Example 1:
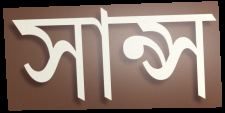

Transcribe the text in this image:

সান্স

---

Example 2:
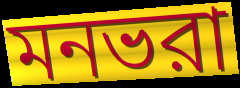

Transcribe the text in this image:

মনভরা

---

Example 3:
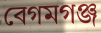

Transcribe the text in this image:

বেগমগঞ্জ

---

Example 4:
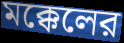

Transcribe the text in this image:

মক্কেলের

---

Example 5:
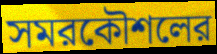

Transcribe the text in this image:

সমরকৌশলের